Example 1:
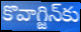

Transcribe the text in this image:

కొవాగ్జిన్‌కు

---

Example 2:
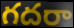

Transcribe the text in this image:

గదరా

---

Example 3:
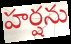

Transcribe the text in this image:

హర్షను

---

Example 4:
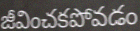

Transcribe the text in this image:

జీవించకపోవడం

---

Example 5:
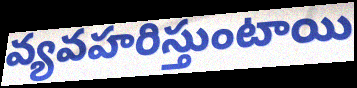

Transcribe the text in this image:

వ్యవహరిస్తుంటాయి